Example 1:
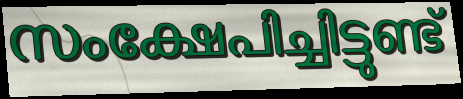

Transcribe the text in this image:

സംക്ഷേപിച്ചിട്ടുണ്ട്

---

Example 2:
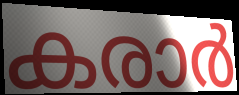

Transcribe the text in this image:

കരാർ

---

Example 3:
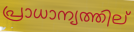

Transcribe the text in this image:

പ്രാധാന്യത്തില്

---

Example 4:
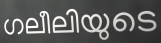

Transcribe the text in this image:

ഗലീലിയുടെ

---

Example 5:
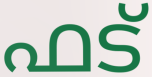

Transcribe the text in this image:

ഫട്